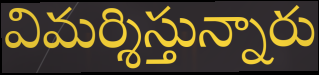
విమర్శిస్తున్నారు